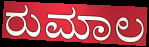
ರುಮಾಲ